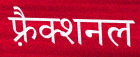
फ़्रैक्शनल